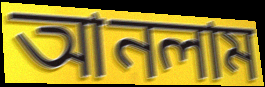
আনলাম